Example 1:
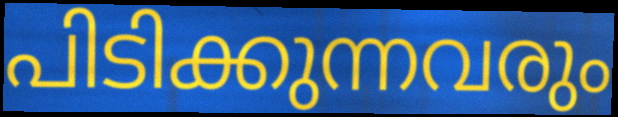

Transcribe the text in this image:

പിടിക്കുന്നവരും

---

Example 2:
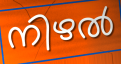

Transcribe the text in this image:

നിഴൽ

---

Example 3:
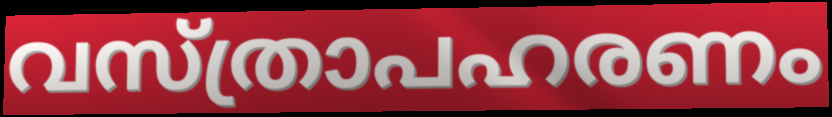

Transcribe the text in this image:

വസ്ത്രാപഹരണം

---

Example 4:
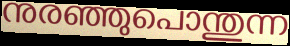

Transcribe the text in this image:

നുരഞ്ഞുപൊന്തുന്ന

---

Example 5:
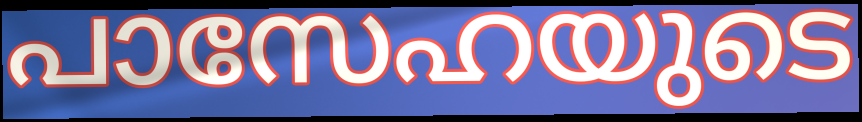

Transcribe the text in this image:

പാസേഹയുടെ